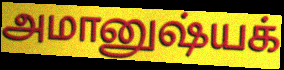
அமானுஷ்யக்